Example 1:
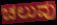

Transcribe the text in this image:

ಚಲುವು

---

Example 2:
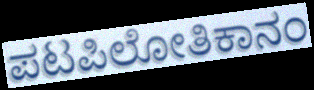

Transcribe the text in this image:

ಪಟಪಿಲೋತಿಕಾನಂ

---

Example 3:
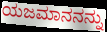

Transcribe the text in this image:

ಯಜಮಾನನನ್ನು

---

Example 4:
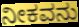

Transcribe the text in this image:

ನೀಕವನು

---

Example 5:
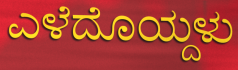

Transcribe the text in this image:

ಎಳೆದೊಯ್ದಳು